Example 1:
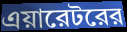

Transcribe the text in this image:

এয়ারেটরের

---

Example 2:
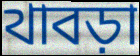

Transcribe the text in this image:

থাবড়া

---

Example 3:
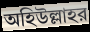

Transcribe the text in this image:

অহিউল্লাহর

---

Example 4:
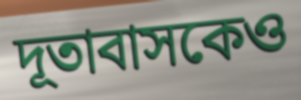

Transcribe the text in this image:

দূতাবাসকেও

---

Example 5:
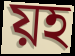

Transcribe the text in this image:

য়হ